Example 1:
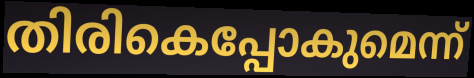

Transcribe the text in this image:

തിരികെപ്പോകുമെന്ന്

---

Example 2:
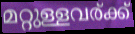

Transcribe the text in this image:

മറ്റുള്ളവര്ക്ക്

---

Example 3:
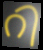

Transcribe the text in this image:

റി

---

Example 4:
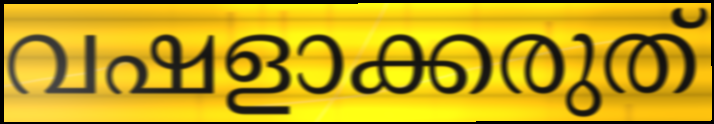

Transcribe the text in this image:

വഷളാക്കരുത്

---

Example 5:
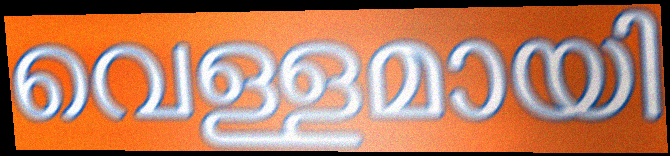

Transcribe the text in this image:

വെള്ളമായി